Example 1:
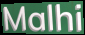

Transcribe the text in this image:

Malhi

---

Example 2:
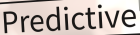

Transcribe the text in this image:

Predictive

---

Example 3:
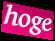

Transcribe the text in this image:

hoge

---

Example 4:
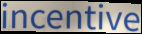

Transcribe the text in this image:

incentive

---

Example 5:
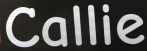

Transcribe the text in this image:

Callie